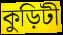
কুড়িটী